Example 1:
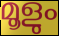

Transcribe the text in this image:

മൂളും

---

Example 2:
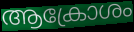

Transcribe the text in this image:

ആക്രോശം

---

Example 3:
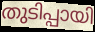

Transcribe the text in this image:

തുടിപ്പായി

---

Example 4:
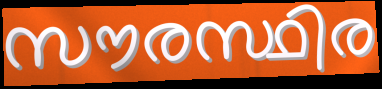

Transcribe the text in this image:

സൗരസ്ഥിര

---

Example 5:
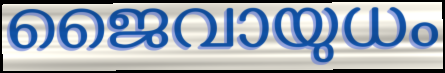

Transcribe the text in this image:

ജൈവായുധം